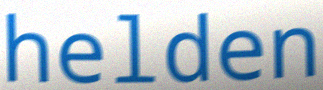
helden